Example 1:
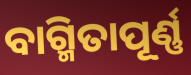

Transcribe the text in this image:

ବାଗ୍ମିତାପୂର୍ଣ୍ଣ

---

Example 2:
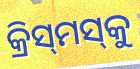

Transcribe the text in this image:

କ୍ରିସ୍‌ମସ୍‌କୁ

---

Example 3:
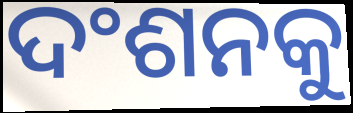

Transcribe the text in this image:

ଦଂଶନକୁ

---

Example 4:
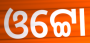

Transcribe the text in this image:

ଓଟ୍ଟୋ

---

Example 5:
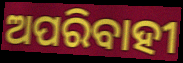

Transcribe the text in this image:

ଅପରିବାହୀ